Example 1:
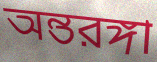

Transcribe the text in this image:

অন্তরঙ্গা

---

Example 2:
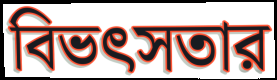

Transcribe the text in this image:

বিভৎসতার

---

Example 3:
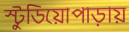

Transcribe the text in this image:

স্টুডিয়োপাড়ায়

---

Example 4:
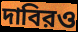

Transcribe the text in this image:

দাবিরও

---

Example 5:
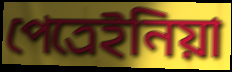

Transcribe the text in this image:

পেত্রেইনিয়া